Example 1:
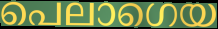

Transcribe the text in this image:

പെലാഗെയ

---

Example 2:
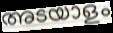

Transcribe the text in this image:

അടയാളം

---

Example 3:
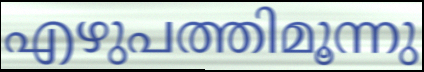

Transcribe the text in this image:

എഴുപത്തിമൂന്നു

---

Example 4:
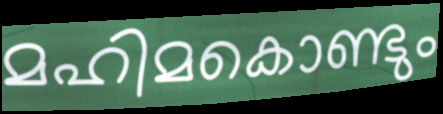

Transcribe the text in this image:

മഹിമകൊണ്ടും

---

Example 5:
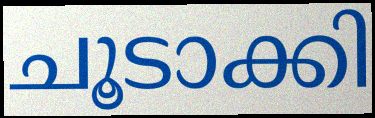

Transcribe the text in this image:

ചൂടാക്കി